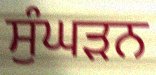
ਸੁੰਘੜਨ